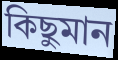
কিছুমান